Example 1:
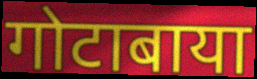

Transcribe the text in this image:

गोटाबाया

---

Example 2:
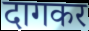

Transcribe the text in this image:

दागकर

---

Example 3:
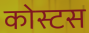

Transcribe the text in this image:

कोस्टस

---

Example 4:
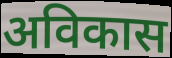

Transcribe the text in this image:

अविकास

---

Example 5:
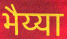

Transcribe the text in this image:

भैय्या